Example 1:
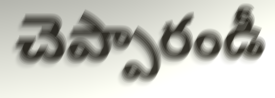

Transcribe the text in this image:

చెప్పారండీ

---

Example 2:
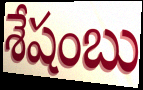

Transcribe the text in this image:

శేషంబు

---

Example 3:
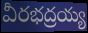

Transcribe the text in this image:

వీరభద్రయ్య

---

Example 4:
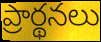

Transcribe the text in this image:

ప్రార్థనలు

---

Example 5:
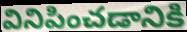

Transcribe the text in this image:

వినిపించడానికి